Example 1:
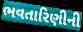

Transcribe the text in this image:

ભવતારિણીની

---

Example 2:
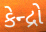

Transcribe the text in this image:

કેન્દ્રો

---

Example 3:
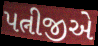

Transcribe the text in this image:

પત્નીજીએ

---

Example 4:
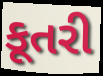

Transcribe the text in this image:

કૂતરી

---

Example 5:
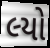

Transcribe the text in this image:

લ્યો